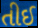
તીઈ